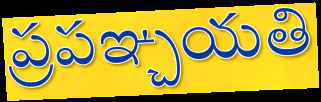
ప్రపఞ్చయతి